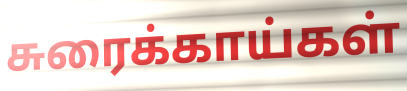
சுரைக்காய்கள்